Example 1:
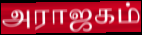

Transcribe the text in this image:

அராஜகம்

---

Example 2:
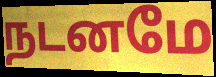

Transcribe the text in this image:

நடனமே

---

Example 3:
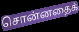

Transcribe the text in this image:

சொன்னதைக்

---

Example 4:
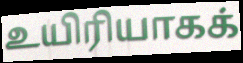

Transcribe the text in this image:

உயிரியாகக்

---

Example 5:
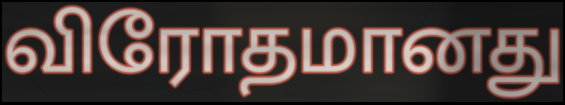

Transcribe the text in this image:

விரோதமானது